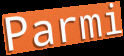
Parmi